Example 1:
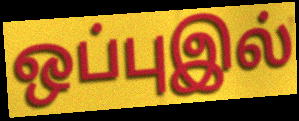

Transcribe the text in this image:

ஒப்புஇல்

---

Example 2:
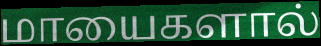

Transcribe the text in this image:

மாயைகளால்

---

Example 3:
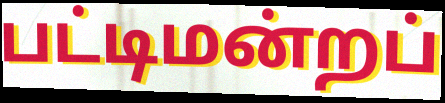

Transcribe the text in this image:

பட்டிமன்றப்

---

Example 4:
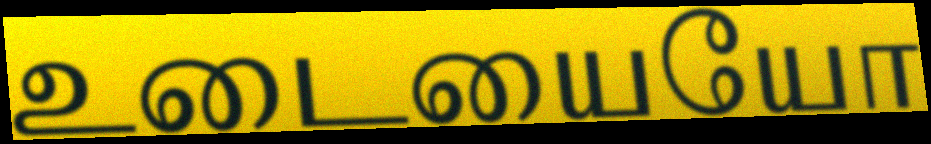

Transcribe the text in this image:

உடையையோ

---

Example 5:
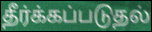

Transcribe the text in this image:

தீர்க்கப்படுதல்